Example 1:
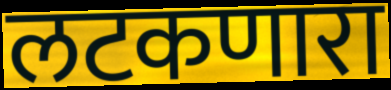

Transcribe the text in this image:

लटकणारा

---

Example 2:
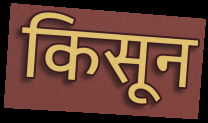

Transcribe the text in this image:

किसून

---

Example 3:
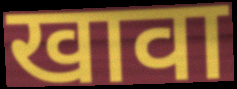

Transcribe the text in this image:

खावा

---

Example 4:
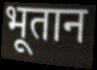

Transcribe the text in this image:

भूतान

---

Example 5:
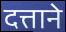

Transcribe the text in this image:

दत्ताने